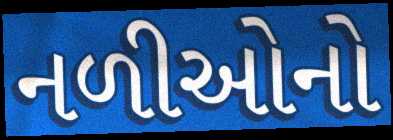
નળીઓનો